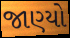
જાણ્યો